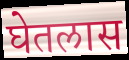
घेतलास